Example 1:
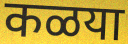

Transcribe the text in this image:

कळया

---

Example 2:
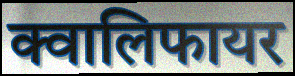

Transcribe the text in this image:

क्वालिफायर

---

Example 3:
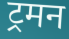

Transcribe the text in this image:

ट्रमन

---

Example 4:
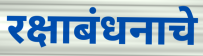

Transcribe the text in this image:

रक्षाबंधनाचे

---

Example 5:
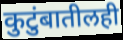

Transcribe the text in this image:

कुटुंबातीलही